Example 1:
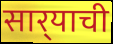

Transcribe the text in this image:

सार्‍याची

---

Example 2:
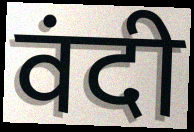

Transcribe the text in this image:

वंदी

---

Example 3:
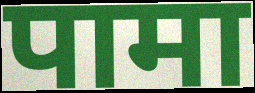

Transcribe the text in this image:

पामा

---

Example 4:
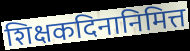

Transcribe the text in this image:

शिक्षकदिनानिमित्त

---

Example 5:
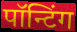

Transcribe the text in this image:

पॉन्टिंग